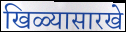
खिळ्यासारखे